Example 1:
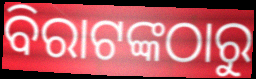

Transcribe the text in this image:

ବିରାଟଙ୍କଠାରୁ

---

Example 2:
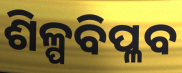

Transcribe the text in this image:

ଶିଳ୍ପବିପ୍ଳବ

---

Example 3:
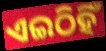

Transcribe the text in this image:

ଏଇଠିହିଁ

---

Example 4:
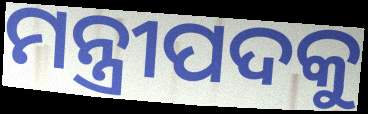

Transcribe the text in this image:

ମନ୍ତ୍ରୀପଦକୁ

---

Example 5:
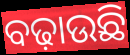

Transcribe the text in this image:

ବଢ଼ାଉଛି